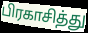
பிரகாசித்து